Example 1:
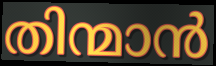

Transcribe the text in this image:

തിന്മാൻ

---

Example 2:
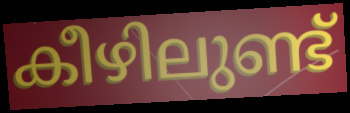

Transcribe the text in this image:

കീഴിലുണ്ട്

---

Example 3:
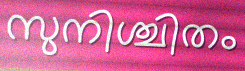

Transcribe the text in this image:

സുനിശ്ചിതം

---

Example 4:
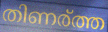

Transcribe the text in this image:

തിണര്ത്ത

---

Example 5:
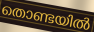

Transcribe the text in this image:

തൊണ്ടയിൽ